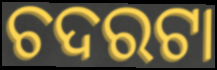
ଚଦରଟା